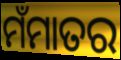
ମଁମାତର